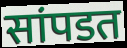
सांपडत